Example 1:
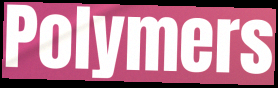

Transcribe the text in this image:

Polymers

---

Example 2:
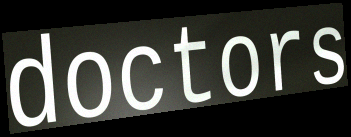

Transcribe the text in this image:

doctors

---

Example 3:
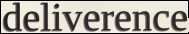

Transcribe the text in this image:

deliverence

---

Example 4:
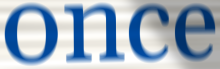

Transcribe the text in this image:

once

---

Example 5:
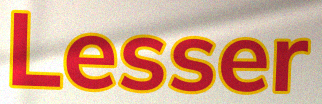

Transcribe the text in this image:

Lesser